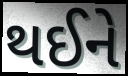
થઈને